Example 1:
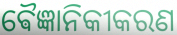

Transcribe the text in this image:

ଵୈଜ୍ଞାନିକୀକରଣ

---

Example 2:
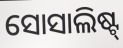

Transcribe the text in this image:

ସୋସାଲିଷ୍ଟ୍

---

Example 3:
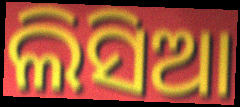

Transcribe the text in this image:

ଲିସିଆ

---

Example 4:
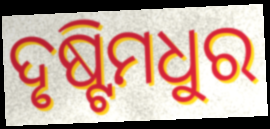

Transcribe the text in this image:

ଦୃଷ୍ଟିମଧୁର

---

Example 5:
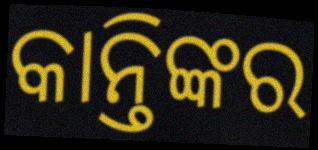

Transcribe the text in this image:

କାନ୍ତିଙ୍କର